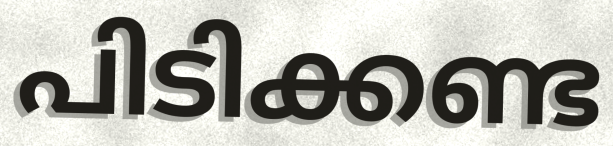
പിടിക്കണ്ട